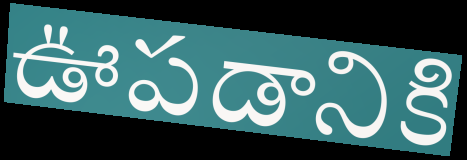
ఊపడానికి